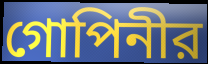
গোপিনীর